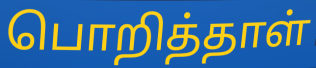
பொறித்தாள்